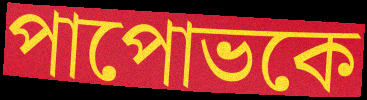
পাপোভকে